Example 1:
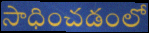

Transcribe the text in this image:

సాధించడంలో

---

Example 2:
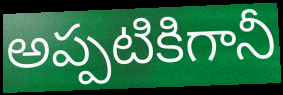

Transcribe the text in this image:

అప్పటికిగానీ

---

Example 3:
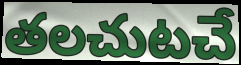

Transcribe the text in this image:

తలచుటచే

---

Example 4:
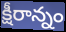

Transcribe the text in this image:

క్షీరాన్నం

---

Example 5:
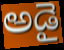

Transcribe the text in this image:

అడై